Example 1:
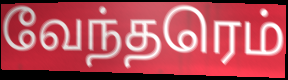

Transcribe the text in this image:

வேந்தரெம்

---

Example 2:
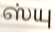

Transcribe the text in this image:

ஸ்யு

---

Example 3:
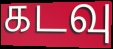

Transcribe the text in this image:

கடவு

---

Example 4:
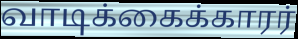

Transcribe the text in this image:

வாடிக்கைக்காரர்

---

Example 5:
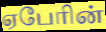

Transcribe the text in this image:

ஏபேரின்